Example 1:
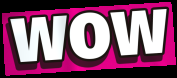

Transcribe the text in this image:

wow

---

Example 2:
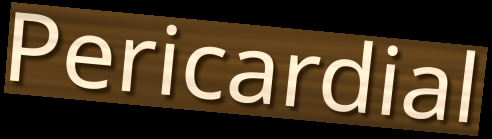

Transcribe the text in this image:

Pericardial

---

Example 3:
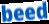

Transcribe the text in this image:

beed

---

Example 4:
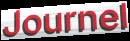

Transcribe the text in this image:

Journel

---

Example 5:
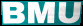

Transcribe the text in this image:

BMU